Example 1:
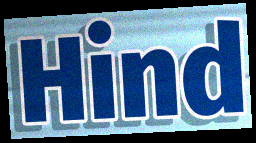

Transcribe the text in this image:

Hind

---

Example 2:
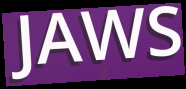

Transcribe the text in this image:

JAWS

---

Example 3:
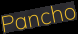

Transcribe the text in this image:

Pancho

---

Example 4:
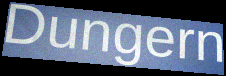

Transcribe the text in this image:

Dungern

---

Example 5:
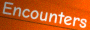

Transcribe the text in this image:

Encounters